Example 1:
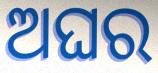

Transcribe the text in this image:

ଅଘର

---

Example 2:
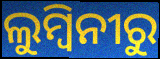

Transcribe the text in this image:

ଲୁମ୍ବିନୀରୁ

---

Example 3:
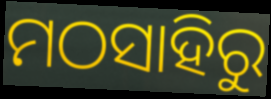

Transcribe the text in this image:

ମଠସାହିରୁ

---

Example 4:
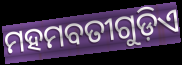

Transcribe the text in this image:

ମହମବତୀଗୁଡ଼ିଏ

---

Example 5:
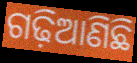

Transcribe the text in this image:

ଗଢ଼ିଆଣିଛି